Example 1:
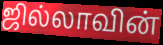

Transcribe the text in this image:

ஜில்லாவின்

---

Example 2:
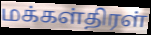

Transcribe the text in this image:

மக்கள்திரள்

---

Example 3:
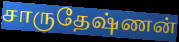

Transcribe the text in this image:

சாருதேஷ்ணன்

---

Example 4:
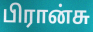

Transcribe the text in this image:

பிரான்சு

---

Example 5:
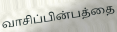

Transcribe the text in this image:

வாசிப்பின்பத்தை